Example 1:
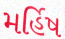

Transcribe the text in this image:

મર્હિષ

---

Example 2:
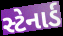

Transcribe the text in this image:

સ્ટેનાર્ડ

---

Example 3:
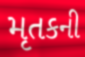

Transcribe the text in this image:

મૃતકની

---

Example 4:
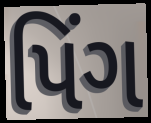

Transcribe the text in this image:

પિંગ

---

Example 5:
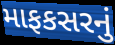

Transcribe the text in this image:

માફકસરનું